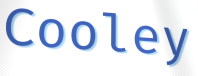
Cooley